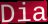
Dia